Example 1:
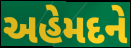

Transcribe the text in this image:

અહેમદને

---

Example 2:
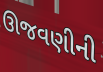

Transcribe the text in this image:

ઊજવણીની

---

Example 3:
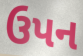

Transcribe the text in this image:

ઉપન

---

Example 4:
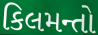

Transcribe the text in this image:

કિલમન્તો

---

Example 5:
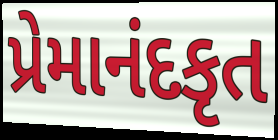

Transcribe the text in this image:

પ્રેમાનંદકૃત